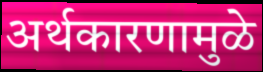
अर्थकारणामुळे